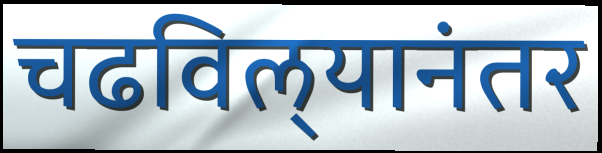
चढविल्यानंतर